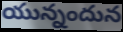
యున్నందున